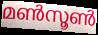
മൺസൂൺ